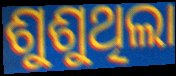
ଶୁଶୁଥିଲା